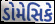
ડોમેસિકે